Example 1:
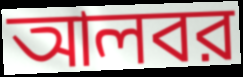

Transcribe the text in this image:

আলবর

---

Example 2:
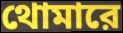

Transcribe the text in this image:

থোমারে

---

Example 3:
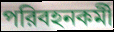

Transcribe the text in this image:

পরিবহনকর্মী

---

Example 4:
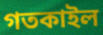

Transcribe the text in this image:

গতকাইল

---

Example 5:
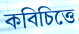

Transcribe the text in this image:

কবিচিত্তে